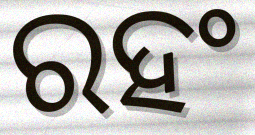
ରହଂ